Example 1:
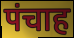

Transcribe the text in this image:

पंचाह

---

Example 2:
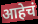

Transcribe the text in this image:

आहेचं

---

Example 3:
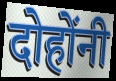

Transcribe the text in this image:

दोहोंनी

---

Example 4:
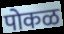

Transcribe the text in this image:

पोकळ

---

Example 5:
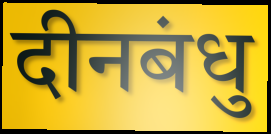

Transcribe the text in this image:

दीनबंधु